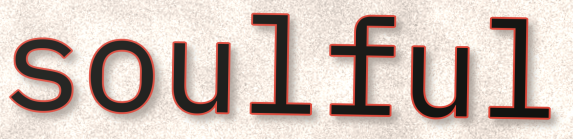
soulful